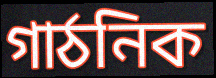
গাঠনিক